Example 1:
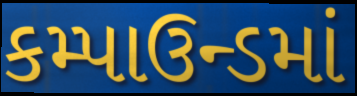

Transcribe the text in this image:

કમ્પાઉન્ડમાં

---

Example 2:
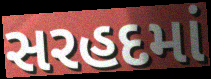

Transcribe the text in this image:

સરહદમાં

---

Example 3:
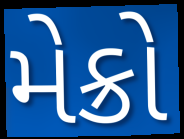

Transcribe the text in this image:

મેક્રો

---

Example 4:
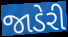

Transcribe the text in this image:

જાડેરી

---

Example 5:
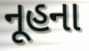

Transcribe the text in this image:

નૂહના